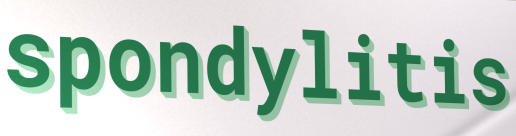
spondylitis